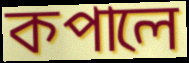
কপালে